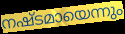
നഷ്ടമായെന്നും